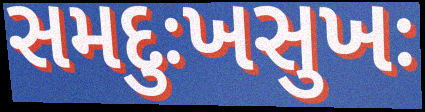
સમદુઃખસુખઃ